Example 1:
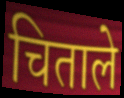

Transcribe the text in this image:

चिताले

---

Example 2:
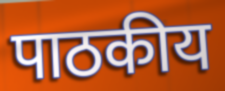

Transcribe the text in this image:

पाठकीय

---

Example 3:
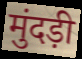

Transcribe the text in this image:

मुंदड़ी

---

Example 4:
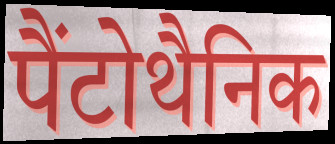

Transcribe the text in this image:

पैंटोथैनिक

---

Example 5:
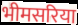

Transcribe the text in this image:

भीमसरिया